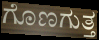
ಗೊಣಗುತ್ತ